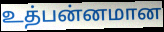
உத்பன்னமான